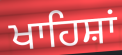
ਖਾਹਿਸ਼ਾਂ